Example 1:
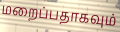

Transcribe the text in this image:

மறைப்பதாகவும்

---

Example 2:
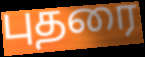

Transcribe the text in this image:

புதரை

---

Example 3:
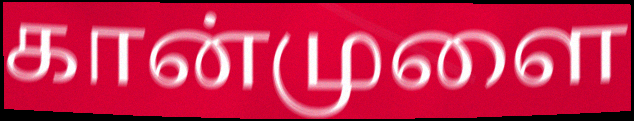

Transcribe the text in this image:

கான்முளை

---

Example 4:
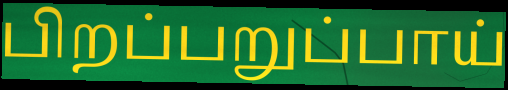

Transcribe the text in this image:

பிறப்பறுப்பாய்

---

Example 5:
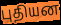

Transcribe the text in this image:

புதியன